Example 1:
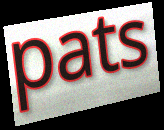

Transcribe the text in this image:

pats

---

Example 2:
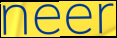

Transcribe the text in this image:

neer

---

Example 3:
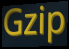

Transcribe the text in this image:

Gzip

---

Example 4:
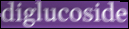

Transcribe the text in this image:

diglucoside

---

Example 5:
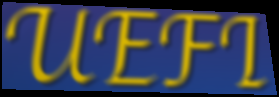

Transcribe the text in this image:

UEFI